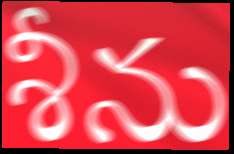
శీను